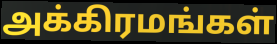
அக்கிரமங்கள்